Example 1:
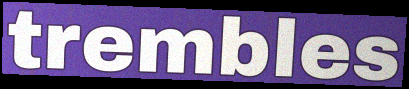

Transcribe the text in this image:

trembles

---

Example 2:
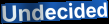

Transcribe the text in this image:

Undecided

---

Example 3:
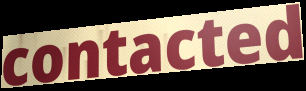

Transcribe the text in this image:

contacted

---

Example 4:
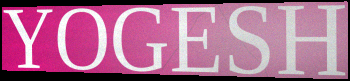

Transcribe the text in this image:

YOGESH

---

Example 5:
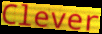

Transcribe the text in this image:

Clever